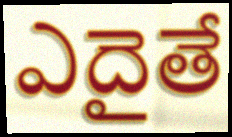
ఎదైతే